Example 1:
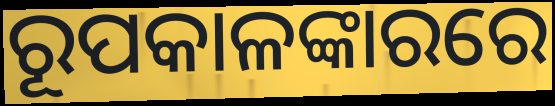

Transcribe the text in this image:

ରୂପକାଳଙ୍କାରରେ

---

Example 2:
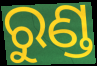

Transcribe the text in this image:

ରୁଣ୍ଡ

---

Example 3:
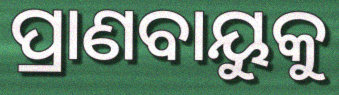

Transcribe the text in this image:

ପ୍ରାଣବାୟୁକୁ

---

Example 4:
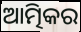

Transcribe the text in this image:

ଆତ୍ମିକର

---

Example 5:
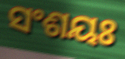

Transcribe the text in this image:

ସଂଶୟଃ